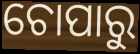
ଚୋପାରୁ